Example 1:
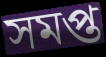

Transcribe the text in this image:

সমপ্ত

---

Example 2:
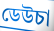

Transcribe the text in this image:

ডেউচা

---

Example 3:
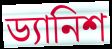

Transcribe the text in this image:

ড্যানিশ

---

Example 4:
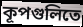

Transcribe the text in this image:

কূপগুলিতে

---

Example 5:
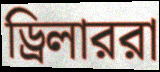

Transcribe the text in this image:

ড্রিলাররা